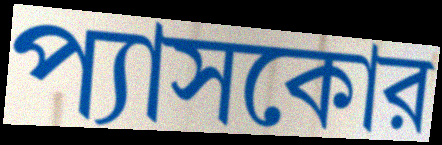
প্যাসকোর